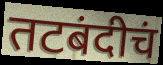
तटबंदीचं